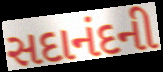
સદાનંદની